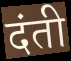
दंती